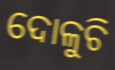
ଦୋଳୁଚି